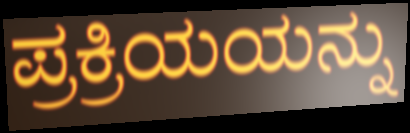
ಪ್ರಕ್ರಿಯಯನ್ನು